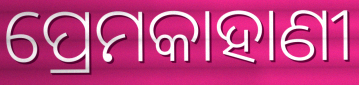
ପ୍ରେମକାହାଣୀ